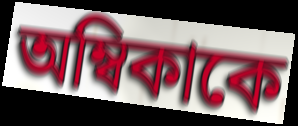
অম্বিকাকে